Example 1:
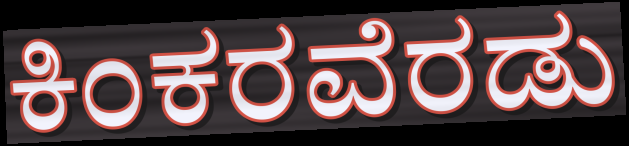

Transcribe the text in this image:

ಕಿಂಕರವೆರಡು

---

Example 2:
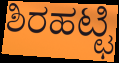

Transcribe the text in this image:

ಶಿರಹಟ್ಟಿ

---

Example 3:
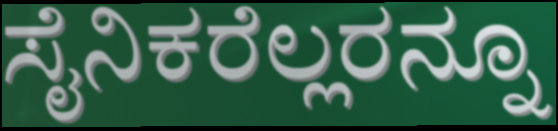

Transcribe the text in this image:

ಸೈನಿಕರೆಲ್ಲರನ್ನೂ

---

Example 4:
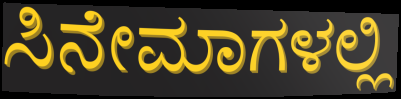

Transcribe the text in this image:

ಸಿನೇಮಾಗಳಲ್ಲಿ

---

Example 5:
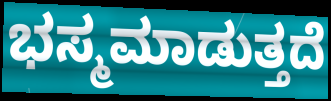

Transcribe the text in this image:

ಭಸ್ಮಮಾಡುತ್ತದೆ